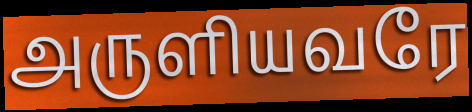
அருளியவரே